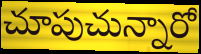
చూపుచున్నారో